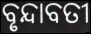
ବୃନ୍ଦାବତୀ